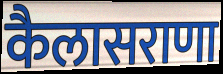
कैलासराणा